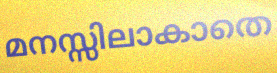
മനസ്സിലാകാതെ